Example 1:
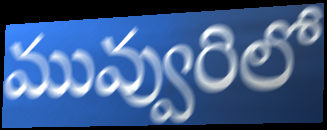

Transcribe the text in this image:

మువ్వురిలో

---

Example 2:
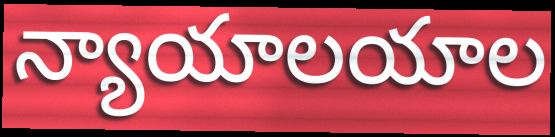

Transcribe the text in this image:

న్యాయాలయాల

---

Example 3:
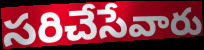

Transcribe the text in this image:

సరిచేసేవారు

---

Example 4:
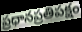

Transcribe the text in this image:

ప్రధానప్రతిపక్షం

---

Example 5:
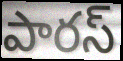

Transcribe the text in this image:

పారస్